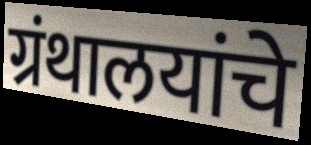
ग्रंथालयांचे